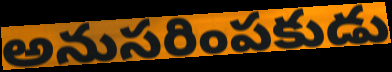
అనుసరింపకుడు